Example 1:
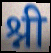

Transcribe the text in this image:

श्नी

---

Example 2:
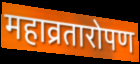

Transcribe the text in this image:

महाव्रतारोपण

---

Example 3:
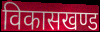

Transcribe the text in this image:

विकासखण्ड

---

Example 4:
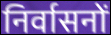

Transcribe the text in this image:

निर्वासनों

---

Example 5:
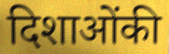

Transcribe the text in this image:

दिशाओंकी